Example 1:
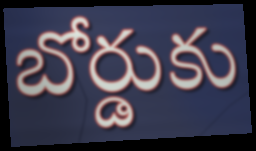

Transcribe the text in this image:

బోర్డుకు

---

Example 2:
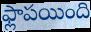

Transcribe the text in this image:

ఫ్లాపయింది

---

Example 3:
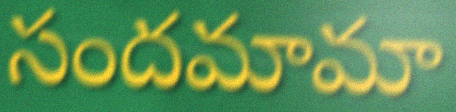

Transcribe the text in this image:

సందమామా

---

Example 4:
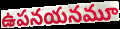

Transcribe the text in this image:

ఉపనయనమూ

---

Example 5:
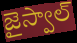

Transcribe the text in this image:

జైస్వాల్